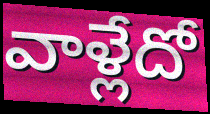
వాళ్లేదో